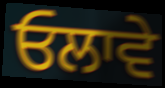
ਓਲਾਵੇ